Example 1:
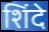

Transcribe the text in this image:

शिंदे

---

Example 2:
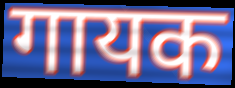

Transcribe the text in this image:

गायक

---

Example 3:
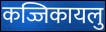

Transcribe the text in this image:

कज्जिकायलु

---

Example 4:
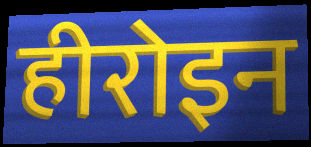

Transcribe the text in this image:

हीरोइन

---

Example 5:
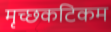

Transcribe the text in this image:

मृच्छकटिकम